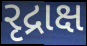
રૃદ્રાક્ષ